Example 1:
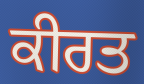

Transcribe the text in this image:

ਕੀਰਤ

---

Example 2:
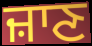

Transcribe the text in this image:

ਜ਼ਾਣ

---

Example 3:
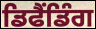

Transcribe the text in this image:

ਡਿਫੈਂਡਿੰਗ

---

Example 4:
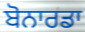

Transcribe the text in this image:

ਬੋਨਾਰਡਾ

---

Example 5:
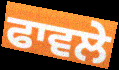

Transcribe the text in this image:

ਫਾਵਲੇ